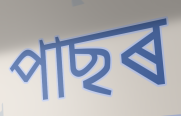
পাছৰ